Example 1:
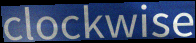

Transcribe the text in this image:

clockwise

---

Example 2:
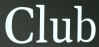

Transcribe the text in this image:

Club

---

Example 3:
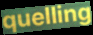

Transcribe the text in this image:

quelling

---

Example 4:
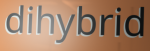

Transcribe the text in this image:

dihybrid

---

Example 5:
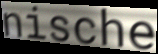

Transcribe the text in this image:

nische